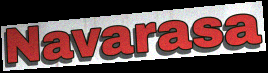
Navarasa